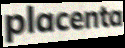
placenta